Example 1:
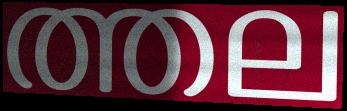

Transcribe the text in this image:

ത്തല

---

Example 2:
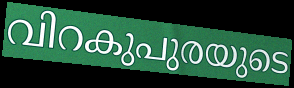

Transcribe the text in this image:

വിറകുപുരയുടെ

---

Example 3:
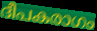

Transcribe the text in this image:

ദീപകരാഗം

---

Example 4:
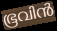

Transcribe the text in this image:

ഭൂവിൻ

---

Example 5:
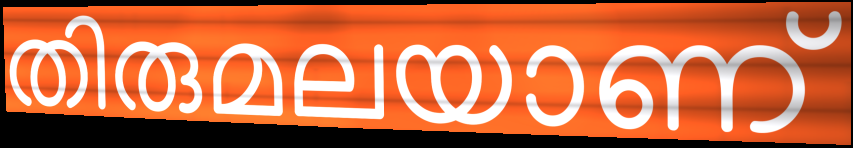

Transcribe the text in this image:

തിരുമലയാണ്